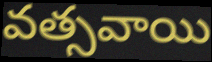
వత్సవాయి